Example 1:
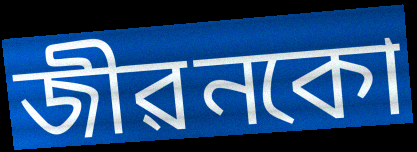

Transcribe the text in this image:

জীৱনকো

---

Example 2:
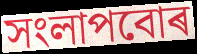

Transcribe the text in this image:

সংলাপবোৰ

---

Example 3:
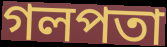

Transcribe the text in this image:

গলপতা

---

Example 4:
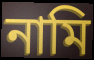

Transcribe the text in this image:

নামি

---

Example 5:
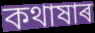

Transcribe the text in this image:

কথাষাৰ